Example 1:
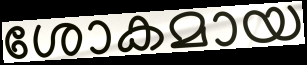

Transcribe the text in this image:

ശോകമായ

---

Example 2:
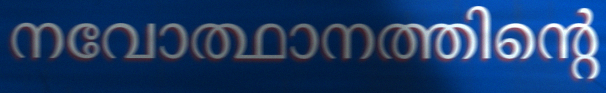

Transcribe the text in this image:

നവോത്ഥാനത്തിന്റെ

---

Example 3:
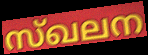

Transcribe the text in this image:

സ്ഖലന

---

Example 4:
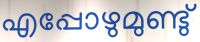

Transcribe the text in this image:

എപ്പോഴുമുണ്ടു്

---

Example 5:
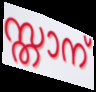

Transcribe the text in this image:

സ്താന്